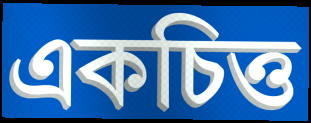
একচিত্ত